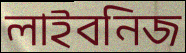
লাইবনিজ